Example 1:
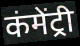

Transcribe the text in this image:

कंमेंट्री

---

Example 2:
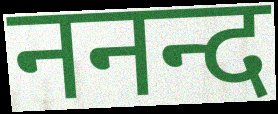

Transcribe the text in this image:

ननन्द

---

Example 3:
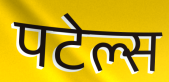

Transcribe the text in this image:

पटेल्स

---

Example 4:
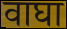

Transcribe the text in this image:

वाघा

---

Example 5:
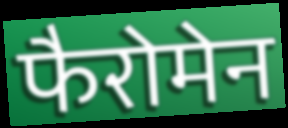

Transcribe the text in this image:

फैरोमेन